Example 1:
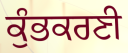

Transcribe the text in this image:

ਕੁੰਭਕਰਣੀ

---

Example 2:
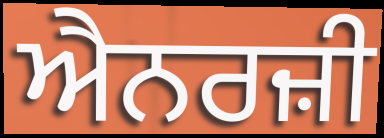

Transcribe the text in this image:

ਐਨਰਜ਼ੀ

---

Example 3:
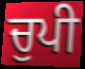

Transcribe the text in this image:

ਚੁਪੀ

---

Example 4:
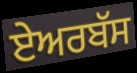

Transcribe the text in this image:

ਏਅਰਬੱਸ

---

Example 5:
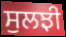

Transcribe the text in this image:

ਸੁਲਝੀ